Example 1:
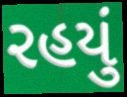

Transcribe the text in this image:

રહયું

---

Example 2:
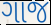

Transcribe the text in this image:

ગાજ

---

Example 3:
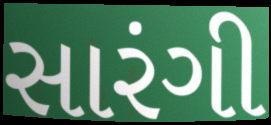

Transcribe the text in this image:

સારંગી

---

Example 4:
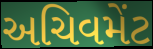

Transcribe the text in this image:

અચિવમેંટ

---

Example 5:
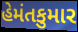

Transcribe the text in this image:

હેમંતકુમાર